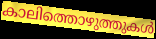
കാലിത്തൊഴുത്തുകൾ